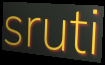
sruti